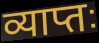
व्याप्तः